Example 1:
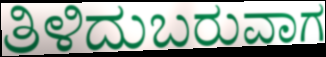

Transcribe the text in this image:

ತಿಳಿದುಬರುವಾಗ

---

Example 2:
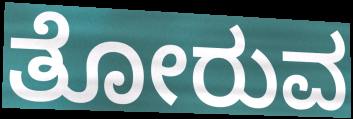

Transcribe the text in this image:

ತೋರುವ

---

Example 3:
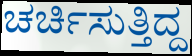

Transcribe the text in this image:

ಚರ್ಚಿಸುತ್ತಿದ್ದ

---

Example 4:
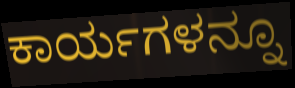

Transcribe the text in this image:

ಕಾರ್ಯಗಳನ್ನೂ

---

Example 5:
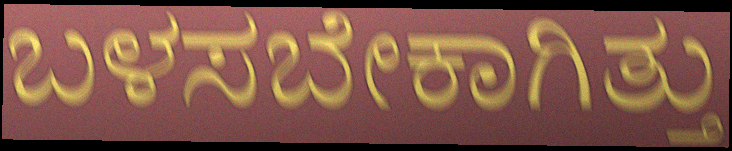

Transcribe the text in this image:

ಬಳಸಬೇಕಾಗಿತ್ತು